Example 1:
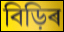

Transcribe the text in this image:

বিড়িৰ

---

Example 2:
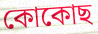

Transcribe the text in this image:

কোকোছ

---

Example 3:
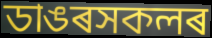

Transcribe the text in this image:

ডাঙৰসকলৰ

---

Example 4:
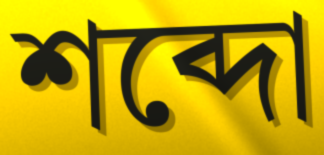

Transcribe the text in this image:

শব্দো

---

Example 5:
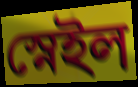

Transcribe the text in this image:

স্নেইল